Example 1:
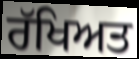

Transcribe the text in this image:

ਰੱਖਿਅਤ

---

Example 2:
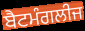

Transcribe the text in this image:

ਬੈਟਮੰਗਲੀਜ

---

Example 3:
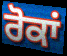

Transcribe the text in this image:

ਰੋਕਾਂ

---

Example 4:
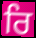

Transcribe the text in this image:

ਰਿ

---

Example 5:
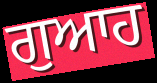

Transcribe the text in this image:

ਗੁਆਹ